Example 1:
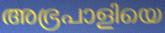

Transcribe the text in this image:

അഭ്രപാളിയെ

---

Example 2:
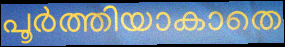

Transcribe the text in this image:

പൂർത്തിയാകാതെ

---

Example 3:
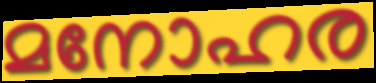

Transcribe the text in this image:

മനോഹര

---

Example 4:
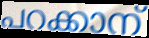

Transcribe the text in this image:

പറക്കാന്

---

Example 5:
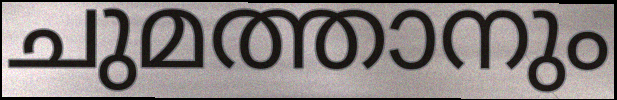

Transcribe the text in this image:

ചുമത്താനും